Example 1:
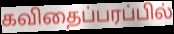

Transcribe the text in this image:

கவிதைப்பரப்பில்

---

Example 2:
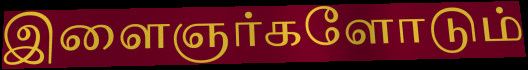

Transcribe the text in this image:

இளைஞர்களோடும்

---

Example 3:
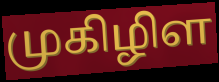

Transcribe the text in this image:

முகிழிள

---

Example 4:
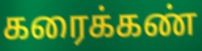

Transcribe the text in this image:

கரைக்கண்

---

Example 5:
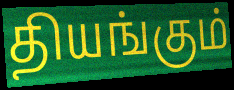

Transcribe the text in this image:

தியங்கும்